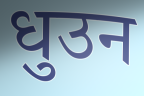
धुउन